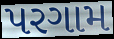
પરગામ